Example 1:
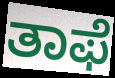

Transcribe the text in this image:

ತಾಫೆ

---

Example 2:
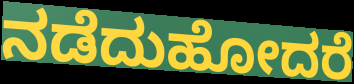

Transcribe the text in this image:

ನಡೆದುಹೋದರೆ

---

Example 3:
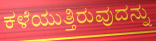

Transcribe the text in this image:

ಕಳೆಯುತ್ತಿರುವುದನ್ನು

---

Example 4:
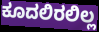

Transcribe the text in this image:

ಕೂದಲಿರಲಿಲ್ಲ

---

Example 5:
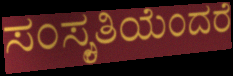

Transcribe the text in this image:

ಸಂಸ್ಕೃತಿಯೆಂದರೆ